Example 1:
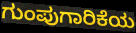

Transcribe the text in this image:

ಗುಂಪುಗಾರಿಕೆಯ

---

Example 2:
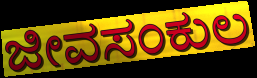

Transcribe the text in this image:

ಜೀವಸಂಕುಲ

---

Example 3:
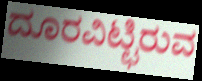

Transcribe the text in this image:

ದೂರವಿಟ್ಟಿರುವ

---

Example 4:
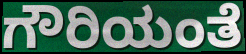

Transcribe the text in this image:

ಗೌರಿಯಂತೆ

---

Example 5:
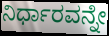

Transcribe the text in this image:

ನಿರ್ಧಾರವನ್ನೇ